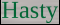
Hasty